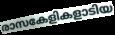
രാസകേളികളാടിയ